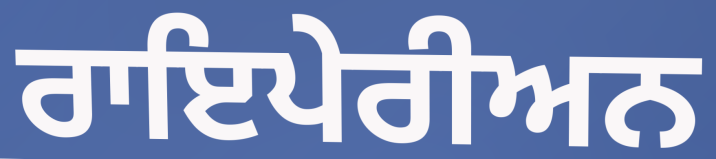
ਰਾਇਪੇਰੀਅਨ